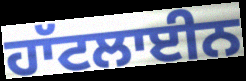
ਹਾੱਟਲਾਈਨ